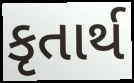
કૃતાર્થ